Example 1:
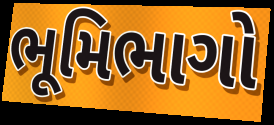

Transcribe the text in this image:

ભૂમિભાગો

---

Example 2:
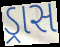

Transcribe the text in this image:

ડ્રાસ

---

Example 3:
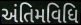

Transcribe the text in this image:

અંતિમવિધિ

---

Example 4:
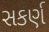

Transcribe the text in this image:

સકર્ણ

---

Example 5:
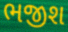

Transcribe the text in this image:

ભજીશ